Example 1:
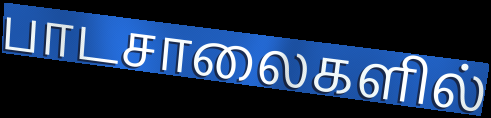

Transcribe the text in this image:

பாடசாலைகளில்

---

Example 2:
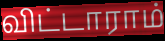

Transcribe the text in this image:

விட்டாராம்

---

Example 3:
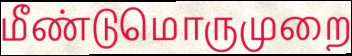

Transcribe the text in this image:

மீண்டுமொருமுறை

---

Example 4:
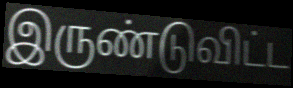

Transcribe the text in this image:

இருண்டுவிட்ட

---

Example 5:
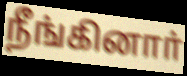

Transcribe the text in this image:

நீங்கினார்